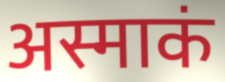
अस्माकं